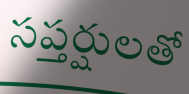
సప్తర్షులతో